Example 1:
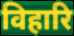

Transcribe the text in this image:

विहारि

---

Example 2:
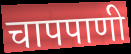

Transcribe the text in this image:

चापपाणी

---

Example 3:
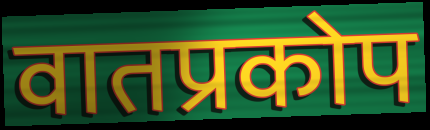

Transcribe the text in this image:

वातप्रकोप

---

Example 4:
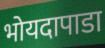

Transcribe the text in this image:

भोयदापाडा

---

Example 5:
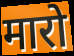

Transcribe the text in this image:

मारो